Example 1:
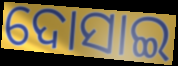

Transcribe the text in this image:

ଦୋସାଇ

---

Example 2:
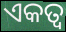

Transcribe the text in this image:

ଏକତ୍ୱ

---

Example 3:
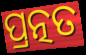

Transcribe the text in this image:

ପ୍ରତ୍ନତ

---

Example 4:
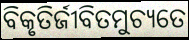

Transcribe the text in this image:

ବିକୃତିର୍ଜୀବିତମୁଚ୍ୟତେ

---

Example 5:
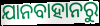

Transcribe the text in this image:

ଯାନବାହାନରୁ